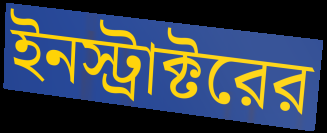
ইনস্ট্রাক্টরের